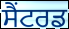
ਸੈਂਟਰਡ